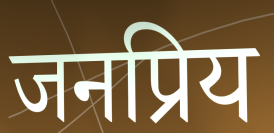
जनप्रिय